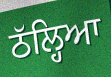
ਠੱਲ੍ਹਿਆ